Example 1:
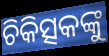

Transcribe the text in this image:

ଚିକିତ୍ସକଙ୍କୁ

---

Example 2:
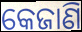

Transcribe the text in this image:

କେଜାଣି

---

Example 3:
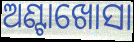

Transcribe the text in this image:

ଅଣ୍ଟାଖୋସା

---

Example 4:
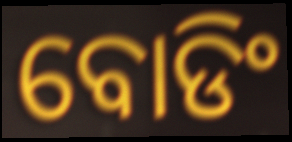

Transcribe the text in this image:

ବୋଡିଂ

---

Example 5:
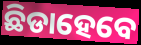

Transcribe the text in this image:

ଛିଡାହେବେ